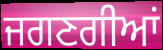
ਜਗਣਗੀਆਂ